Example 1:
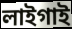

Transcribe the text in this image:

লাইগাই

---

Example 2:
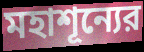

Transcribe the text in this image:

মহাশূন্যের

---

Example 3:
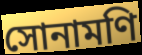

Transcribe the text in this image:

সোনামণি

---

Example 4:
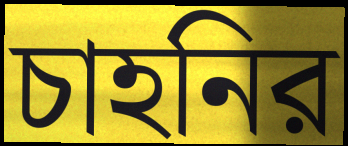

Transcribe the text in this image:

চাহনির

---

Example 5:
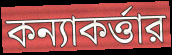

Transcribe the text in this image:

কন্যাকর্ত্তার